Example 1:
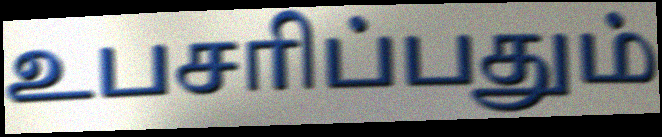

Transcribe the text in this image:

உபசரிப்பதும்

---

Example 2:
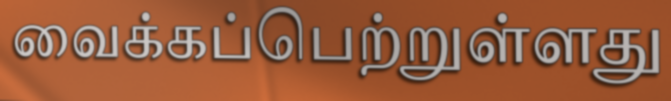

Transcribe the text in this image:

வைக்கப்பெற்றுள்ளது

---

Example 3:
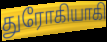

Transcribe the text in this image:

துரோகியாகி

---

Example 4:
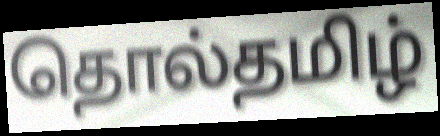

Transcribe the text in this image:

தொல்தமிழ்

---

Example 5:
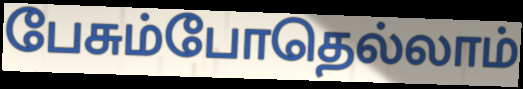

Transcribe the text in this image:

பேசும்போதெல்லாம்